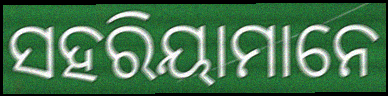
ସହରିୟାମାନେ